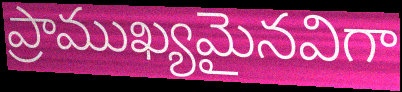
ప్రాముఖ్యమైనవిగా